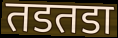
तडतडा